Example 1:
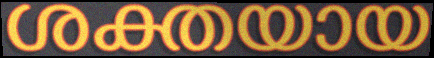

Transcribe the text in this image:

ശക്തയായ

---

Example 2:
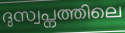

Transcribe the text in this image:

ദുസ്വപ്നത്തിലെ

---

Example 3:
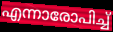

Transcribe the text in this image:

എന്നാരോപിച്ച്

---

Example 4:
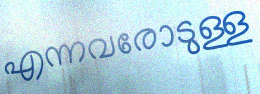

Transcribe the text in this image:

എന്നവരോടുള്ള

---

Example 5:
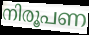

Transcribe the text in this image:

നിരൂപണ